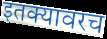
इतक्यावरच